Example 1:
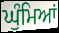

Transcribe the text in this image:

ਘੁੰਮਿਆਂ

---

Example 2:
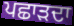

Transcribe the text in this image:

ਪਛਾੜਦਾ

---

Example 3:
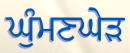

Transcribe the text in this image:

ਘੁੰਮਣਘੇੜ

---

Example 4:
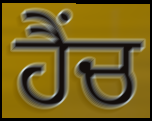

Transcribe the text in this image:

ਹੈਂਚ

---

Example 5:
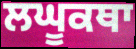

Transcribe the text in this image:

ਲਘੂਕਥਾ